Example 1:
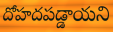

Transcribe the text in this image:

దోహదపడ్డాయని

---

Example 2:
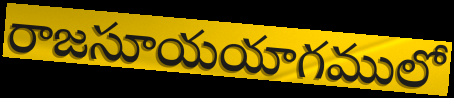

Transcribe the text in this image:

రాజసూయయాగములో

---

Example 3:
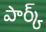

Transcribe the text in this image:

పార్క్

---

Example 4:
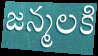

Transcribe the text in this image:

జన్మలకి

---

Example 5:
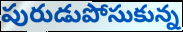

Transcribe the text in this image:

పురుడుపోసుకున్న